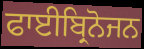
ਫਾਈਬ੍ਰਿਨੋਜਨ